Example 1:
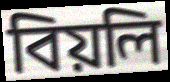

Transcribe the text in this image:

বিয়লি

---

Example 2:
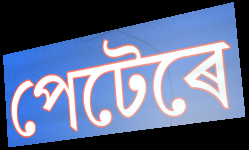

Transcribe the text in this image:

পেটেৰে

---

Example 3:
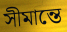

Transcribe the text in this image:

সীমান্তে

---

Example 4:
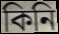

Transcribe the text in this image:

কিনি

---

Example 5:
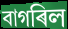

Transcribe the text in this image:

বাগৰিল